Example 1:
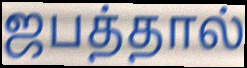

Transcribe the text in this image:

ஜபத்தால்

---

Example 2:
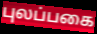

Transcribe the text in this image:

புலப்பகை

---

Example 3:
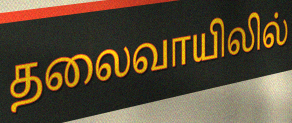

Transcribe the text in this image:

தலைவாயிலில்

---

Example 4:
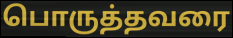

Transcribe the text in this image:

பொருத்தவரை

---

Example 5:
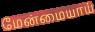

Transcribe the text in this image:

மேன்மையாய்